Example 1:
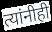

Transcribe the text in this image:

त्यांनीही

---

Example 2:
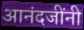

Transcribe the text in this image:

आनंदजींनी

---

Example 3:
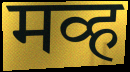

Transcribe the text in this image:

मव्ह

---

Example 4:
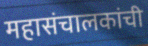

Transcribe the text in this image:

महासंचालकांची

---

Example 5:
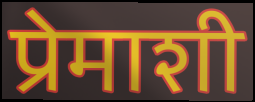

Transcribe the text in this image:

प्रेमाशी